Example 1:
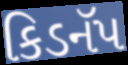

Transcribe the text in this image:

કિડનૅપ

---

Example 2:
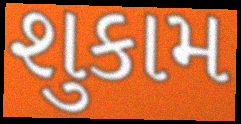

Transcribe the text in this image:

શુકામ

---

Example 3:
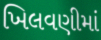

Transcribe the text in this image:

ખિલવણીમાં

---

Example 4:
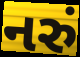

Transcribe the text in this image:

નરું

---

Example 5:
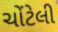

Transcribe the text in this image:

ચોંટેલી